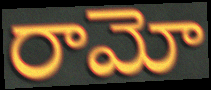
రామో